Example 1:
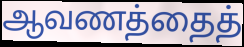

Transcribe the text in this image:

ஆவணத்தைத்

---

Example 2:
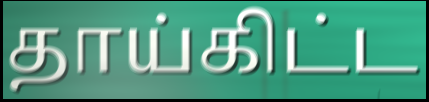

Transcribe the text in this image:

தாய்கிட்ட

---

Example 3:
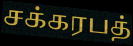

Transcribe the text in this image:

சக்கரபத்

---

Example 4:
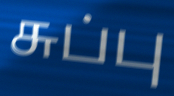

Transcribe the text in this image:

சுப்பு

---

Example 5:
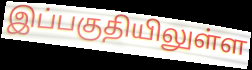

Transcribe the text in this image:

இப்பகுதியிலுள்ள